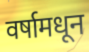
वर्षामधून